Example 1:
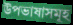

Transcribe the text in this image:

উপভাষাসমূহ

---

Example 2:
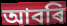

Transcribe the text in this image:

আবৰি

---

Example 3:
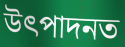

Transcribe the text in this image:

উৎপাদনত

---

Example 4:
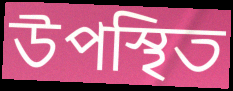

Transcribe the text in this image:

উপস্থিত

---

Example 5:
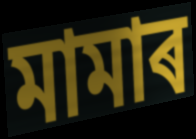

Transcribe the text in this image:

মামাৰ